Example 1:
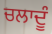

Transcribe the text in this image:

ਚਲਾਦੂੰ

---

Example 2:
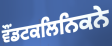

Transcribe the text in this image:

ਵੌਂਡਟਕਲਿਨਿਕਨੇ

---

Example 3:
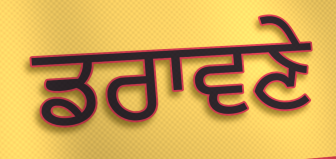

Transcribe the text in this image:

ਡਰਾਵਣੇ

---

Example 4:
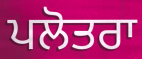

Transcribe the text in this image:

ਪਲੋਤਰਾ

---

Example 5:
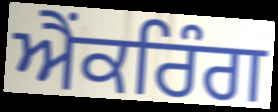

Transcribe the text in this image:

ਐਂਕਰਿੰਗ